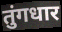
तुंगधार